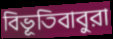
বিভূতিবাবুরা